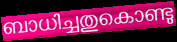
ബാധിച്ചതുകൊണ്ടു